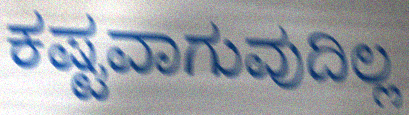
ಕಷ್ಟವಾಗುವುದಿಲ್ಲ